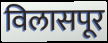
विलासपूर